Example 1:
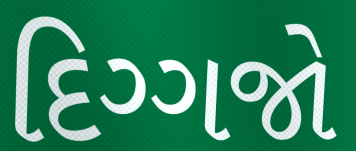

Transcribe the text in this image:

દિગ્ગજો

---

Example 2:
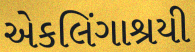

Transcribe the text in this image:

એકલિંગાશ્રયી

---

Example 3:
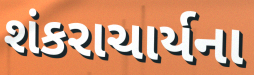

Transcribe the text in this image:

શંકરાચાર્યના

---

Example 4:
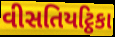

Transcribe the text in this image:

વીસતિયટ્ઠિકા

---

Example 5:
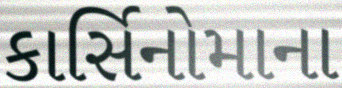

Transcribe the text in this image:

કાર્સિનોમાના